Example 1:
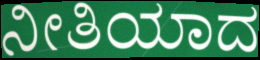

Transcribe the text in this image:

ನೀತಿಯಾದ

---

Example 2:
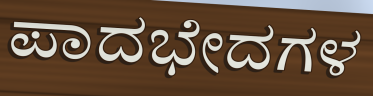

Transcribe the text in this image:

ಪಾದಭೇದಗಳ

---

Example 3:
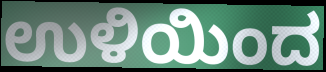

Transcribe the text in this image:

ಉಳಿಯಿಂದ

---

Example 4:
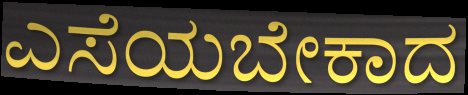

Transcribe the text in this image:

ಎಸೆಯಬೇಕಾದ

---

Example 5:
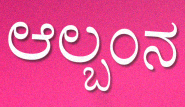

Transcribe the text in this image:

ಆಲ್ಬಂನ